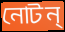
নোটন্